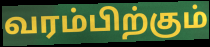
வரம்பிற்கும்